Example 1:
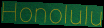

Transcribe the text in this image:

Honolulu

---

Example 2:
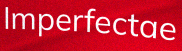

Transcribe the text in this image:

Imperfectae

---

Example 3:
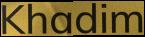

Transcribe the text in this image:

Khadim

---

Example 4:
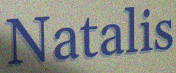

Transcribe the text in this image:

Natalis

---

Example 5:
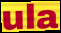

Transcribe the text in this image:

ula